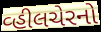
વ્હીલચેરનો